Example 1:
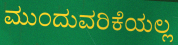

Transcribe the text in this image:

ಮುಂದುವರಿಕೆಯಲ್ಲ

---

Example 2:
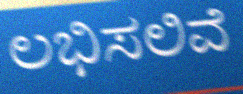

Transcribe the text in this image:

ಲಭಿಸಲಿವೆ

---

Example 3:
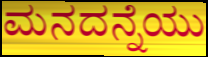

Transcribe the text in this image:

ಮನದನ್ನೆಯು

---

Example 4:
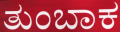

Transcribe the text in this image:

ತುಂಬಾಕ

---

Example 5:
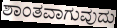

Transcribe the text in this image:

ಶಾಂತವಾಗುವುದು